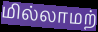
மில்லாமற்